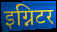
इग्निटर